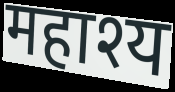
महाश्य